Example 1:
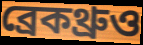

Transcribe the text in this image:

ব্রেকথ্রুও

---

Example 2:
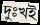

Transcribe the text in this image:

দুঃখই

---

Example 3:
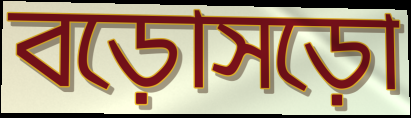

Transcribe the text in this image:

বড়োসড়ো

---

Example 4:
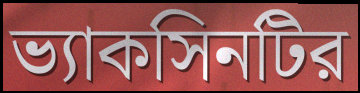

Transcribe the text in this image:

ভ্যাকসিনটির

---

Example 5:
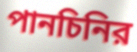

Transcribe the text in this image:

পানচিনির